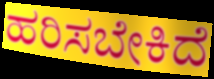
ಹರಿಸಬೇಕಿದೆ